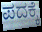
ಪದಕ್ಕೆ